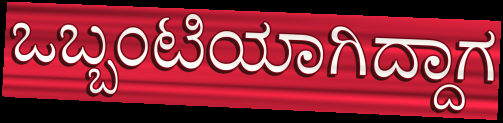
ಒಬ್ಬಂಟಿಯಾಗಿದ್ದಾಗ